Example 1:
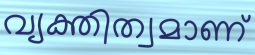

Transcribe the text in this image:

വ്യക്തിത്വമാണ്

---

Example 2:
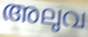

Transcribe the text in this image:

അലുവ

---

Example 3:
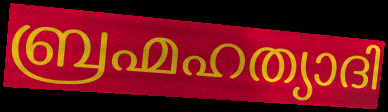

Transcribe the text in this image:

ബ്രഹ്മഹത്യാദി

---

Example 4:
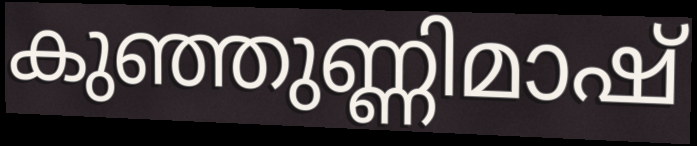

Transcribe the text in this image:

കുഞ്ഞുണ്ണിമാഷ്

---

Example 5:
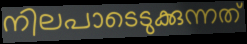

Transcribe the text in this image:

നിലപാടെടുക്കുന്നത്